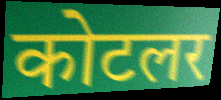
कोटलर